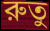
রুতু